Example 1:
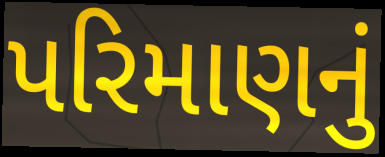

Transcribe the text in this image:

પરિમાણનું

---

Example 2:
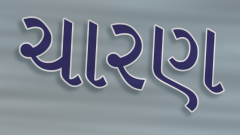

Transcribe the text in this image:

ચારણ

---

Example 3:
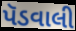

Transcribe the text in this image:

પૅડવાલી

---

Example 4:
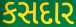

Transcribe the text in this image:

કસદાર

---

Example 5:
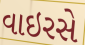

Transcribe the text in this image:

વાઇરસે